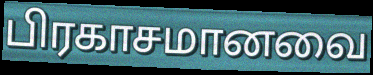
பிரகாசமானவை